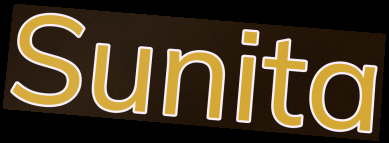
Sunita